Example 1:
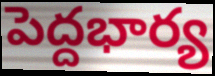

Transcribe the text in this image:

పెద్దభార్య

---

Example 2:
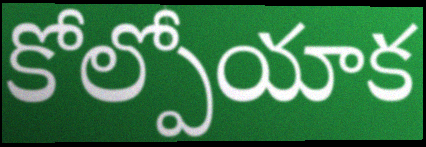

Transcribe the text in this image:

కోల్పోయాక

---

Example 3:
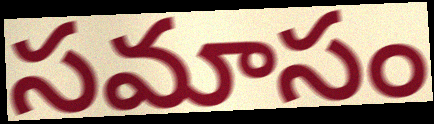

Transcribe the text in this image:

సమాసం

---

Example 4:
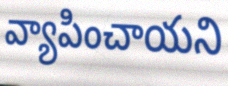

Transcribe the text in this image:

వ్యాపించాయని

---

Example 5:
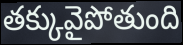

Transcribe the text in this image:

తక్కువైపోతుంది